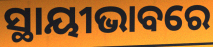
ସ୍ଥାୟୀଭାବରେ